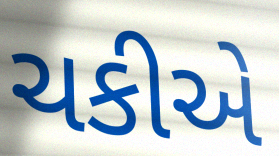
ચકીએ